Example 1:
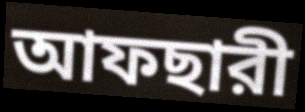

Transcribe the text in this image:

আফছারী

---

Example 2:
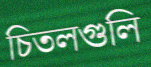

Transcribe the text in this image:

চিতলগুলি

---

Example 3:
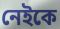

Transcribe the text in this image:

নেইকে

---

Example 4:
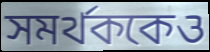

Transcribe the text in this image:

সমর্থককেও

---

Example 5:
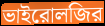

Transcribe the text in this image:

ভাইরোলজির